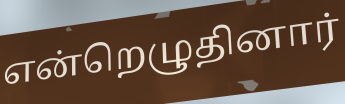
என்றெழுதினார்